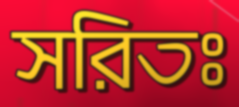
সরিতঃ